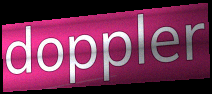
doppler